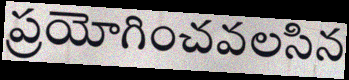
ప్రయోగించవలసిన